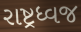
રાષ્ટ્રધ્વજ